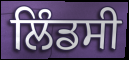
ਲਿੰਡਸੀ